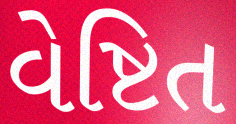
વેષ્ટિત